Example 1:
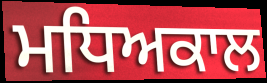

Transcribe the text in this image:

ਮਧਿਅਕਾਲ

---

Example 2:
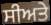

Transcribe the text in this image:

ਸੀਅਤੇ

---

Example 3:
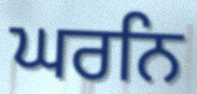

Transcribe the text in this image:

ਘਰਨਿ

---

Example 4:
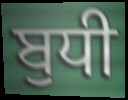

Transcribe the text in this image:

ਬੁਧੀ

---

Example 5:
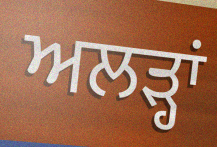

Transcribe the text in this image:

ਅਲੜ੍ਹਾਂ